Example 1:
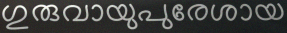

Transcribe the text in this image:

ഗുരുവായുപുരേശായ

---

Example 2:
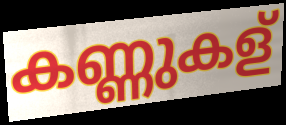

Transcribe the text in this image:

കണ്ണുകള്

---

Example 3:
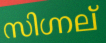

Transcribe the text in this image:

സിഗ്നല്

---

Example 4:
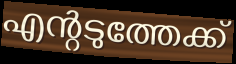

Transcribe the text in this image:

എന്റടുത്തേക്ക്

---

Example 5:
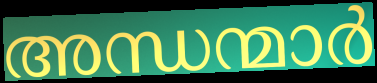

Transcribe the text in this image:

അന്ധന്മാർ